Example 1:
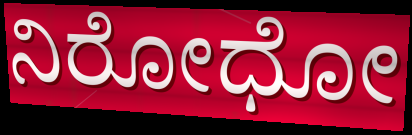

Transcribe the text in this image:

ನಿರೋಧೋ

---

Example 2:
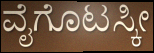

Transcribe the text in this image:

ವೈಗೊಟಸ್ಕೀ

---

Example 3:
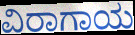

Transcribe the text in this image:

ವಿರಾಗಾಯ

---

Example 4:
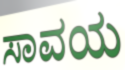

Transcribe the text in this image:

ಸಾವಯ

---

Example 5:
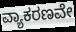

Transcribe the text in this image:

ವ್ಯಾಕರಣವೇ